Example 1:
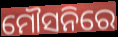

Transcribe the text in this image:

ମୌସନିରେ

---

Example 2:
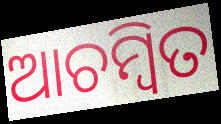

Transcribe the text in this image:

ଆଚମ୍ବିତ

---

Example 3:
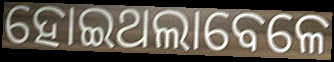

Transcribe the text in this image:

ହୋଇଥଲାବେଳେ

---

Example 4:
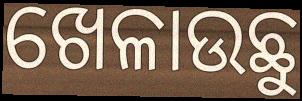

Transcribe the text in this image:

ଖେଳାଉଛୁ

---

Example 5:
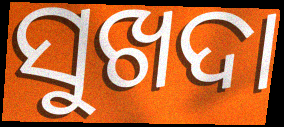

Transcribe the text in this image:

ସୁଖଦା